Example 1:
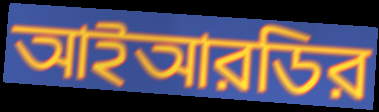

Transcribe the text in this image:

আইআরডির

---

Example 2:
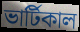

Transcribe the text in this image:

ভার্টিকাল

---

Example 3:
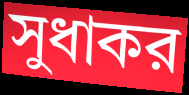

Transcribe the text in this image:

সুধাকর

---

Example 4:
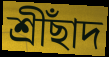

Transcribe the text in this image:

শ্রীছাঁদ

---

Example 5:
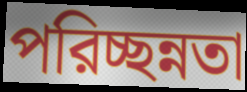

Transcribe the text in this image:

পরিচ্ছন্নতা